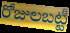
రోజులబట్టీ